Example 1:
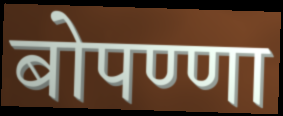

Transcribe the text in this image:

बोपण्णा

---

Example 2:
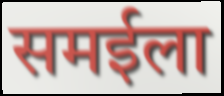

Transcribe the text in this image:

समईला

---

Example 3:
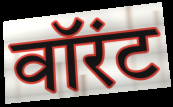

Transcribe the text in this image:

वॉरंट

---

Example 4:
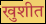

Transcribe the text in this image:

खुशीत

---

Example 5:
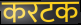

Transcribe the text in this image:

करटक